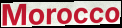
Morocco